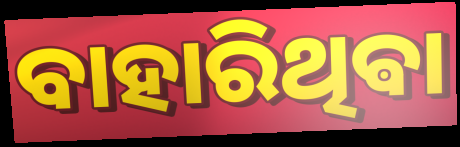
ବାହାରିଥିଵା